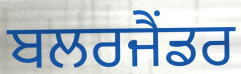
ਬਲਰਜੈਂਡਰ